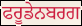
ਫਰੂਡੇਨਬਰਗ